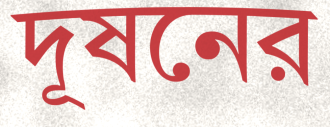
দূষনের